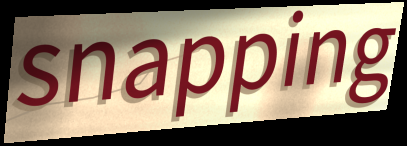
snapping